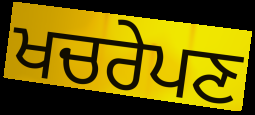
ਖਚਰੇਪਣ